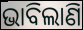
ଭାବିଲାଣି